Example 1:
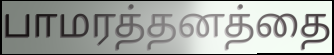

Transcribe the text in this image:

பாமரத்தனத்தை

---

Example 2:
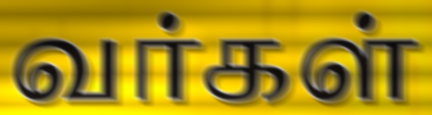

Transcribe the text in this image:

வர்கள்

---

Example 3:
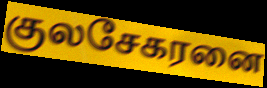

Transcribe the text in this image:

குலசேகரனை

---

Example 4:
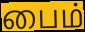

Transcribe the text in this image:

பைம்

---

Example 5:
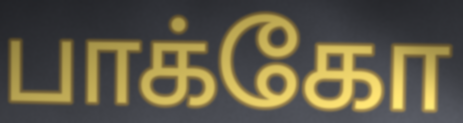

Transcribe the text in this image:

பாக்கோ